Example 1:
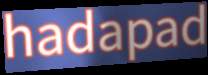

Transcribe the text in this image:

hadapad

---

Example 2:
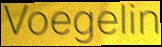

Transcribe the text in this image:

Voegelin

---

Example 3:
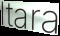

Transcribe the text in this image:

Itara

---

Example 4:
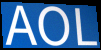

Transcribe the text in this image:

AOL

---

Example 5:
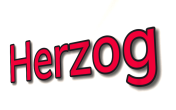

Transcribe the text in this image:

Herzog